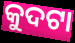
କୁଦଟା